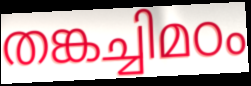
തങ്കച്ചിമഠം